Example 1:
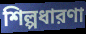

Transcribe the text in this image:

শিল্পধারণা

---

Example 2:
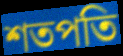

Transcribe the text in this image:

শতপতি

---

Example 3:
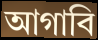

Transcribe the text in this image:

আগাবি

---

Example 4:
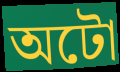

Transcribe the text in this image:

অটো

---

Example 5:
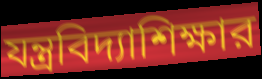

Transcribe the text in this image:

যন্ত্রবিদ্যাশিক্ষার